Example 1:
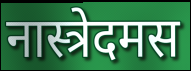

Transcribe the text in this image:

नास्त्रेदमस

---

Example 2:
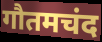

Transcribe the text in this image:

गौतमचंद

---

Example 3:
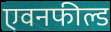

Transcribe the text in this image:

एवनफील्ड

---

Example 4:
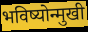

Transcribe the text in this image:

भविष्योन्मुखी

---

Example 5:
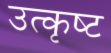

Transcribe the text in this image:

उत्कृष्‍ट